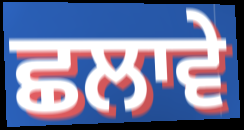
ਛਲਾਵੇ